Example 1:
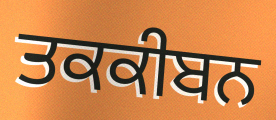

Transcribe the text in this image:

ਤਕਕੀਬਨ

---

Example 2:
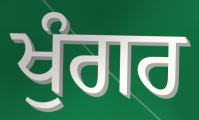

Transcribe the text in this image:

ਖੁੰਗਰ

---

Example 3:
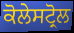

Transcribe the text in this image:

ਕੋਲੇਸਟ੍ਰੋਲ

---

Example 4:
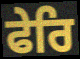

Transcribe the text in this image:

ਫੇਰਿ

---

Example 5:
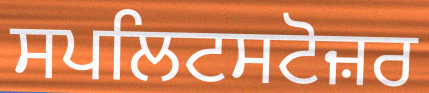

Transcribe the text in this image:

ਸਪਲਿਟਸਟੋਜ਼ਰ